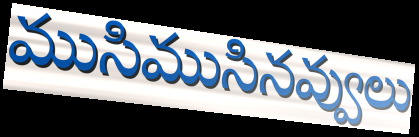
ముసిముసినవ్వులు